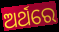
ଅର୍ଥରେ